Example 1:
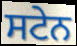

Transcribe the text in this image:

ਸਟੇਨ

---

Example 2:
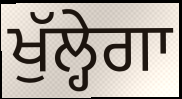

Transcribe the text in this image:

ਖੁੱਲ੍ਹੇਗਾ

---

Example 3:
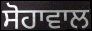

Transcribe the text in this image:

ਸੋਹਾਵਾਲ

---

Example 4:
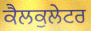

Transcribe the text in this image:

ਕੈਲਕੁਲੇਟਰ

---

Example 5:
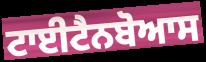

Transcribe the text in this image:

ਟਾਈਟੈਨਬੋਆਸ